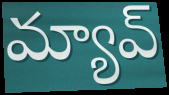
మ్యావ్